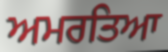
ਅਮਰਤਿਆ